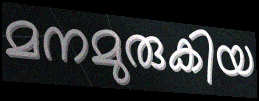
മനമുരുകിയ